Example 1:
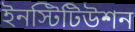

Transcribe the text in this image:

ইনস্টিটিউশন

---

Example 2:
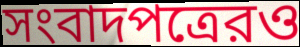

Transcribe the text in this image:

সংবাদপত্রেরও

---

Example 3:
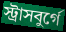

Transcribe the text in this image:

স্ট্রাসবুর্গে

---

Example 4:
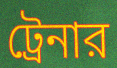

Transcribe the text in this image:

ট্রেনার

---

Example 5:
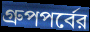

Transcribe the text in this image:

গ্রুপপর্বের